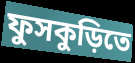
ফুসকুড়িতে